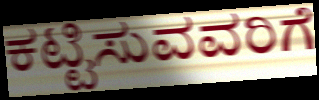
ಕಟ್ಟಿಸುವವರಿಗೆ